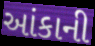
આંકાની